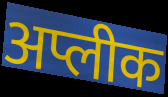
अप्लीक